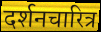
दर्शनचारित्र